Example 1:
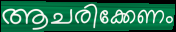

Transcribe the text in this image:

ആചരിക്കേണം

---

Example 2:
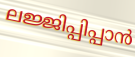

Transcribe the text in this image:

ലജ്ജിപ്പിപ്പാൻ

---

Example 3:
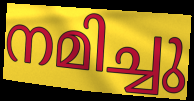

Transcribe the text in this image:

നമിച്ചു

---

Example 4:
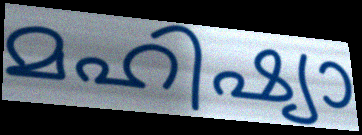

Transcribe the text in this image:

മഹിഷ്യാ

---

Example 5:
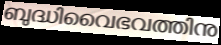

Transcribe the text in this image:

ബുദ്ധിവൈഭവത്തിനു